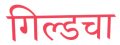
गिल्डचा